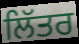
ਲਿੱਤਰ